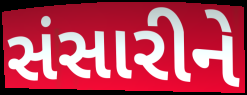
સંસારીને